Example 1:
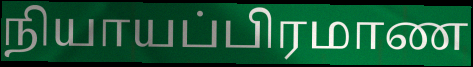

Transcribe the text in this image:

நியாயப்பிரமாண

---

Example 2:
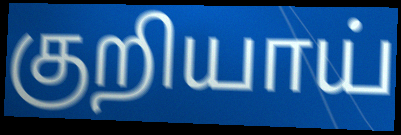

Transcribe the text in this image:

குறியாய்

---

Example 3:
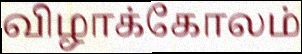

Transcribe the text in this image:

விழாக்கோலம்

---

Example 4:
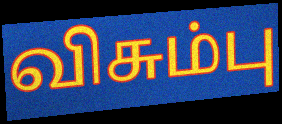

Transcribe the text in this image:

விசும்பு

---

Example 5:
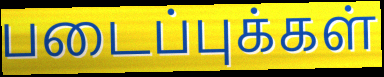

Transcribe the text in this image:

படைப்புக்கள்